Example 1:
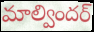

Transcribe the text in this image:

మాల్విందర్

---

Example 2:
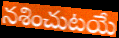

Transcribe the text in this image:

నశించుటయే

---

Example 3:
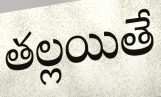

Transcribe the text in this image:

తల్లయితే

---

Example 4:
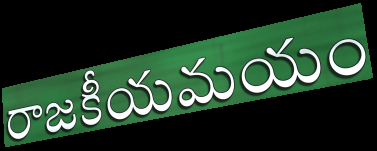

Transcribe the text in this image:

రాజకీయమయం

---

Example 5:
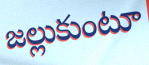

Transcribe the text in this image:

జల్లుకుంటూ